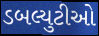
ડબલ્યુટીઓ